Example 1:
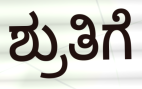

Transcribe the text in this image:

ಶ್ರುತಿಗೆ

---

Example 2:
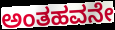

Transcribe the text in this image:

ಅಂತಹವನೇ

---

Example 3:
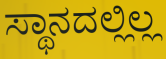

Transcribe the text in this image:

ಸ್ಥಾನದಲ್ಲಿಲ್ಲ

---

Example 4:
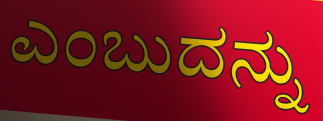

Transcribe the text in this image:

ಎಂಬುದನ್ನು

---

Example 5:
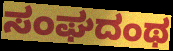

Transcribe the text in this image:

ಸಂಘದಂಥ